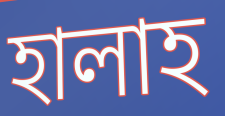
হালাহ